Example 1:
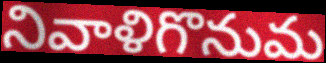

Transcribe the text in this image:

నివాళిగొనుమ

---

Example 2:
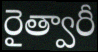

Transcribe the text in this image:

రైత్వారీ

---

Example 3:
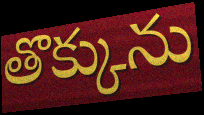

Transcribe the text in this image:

తొక్కును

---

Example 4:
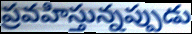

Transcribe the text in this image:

ప్రవహిస్తున్నప్పుడు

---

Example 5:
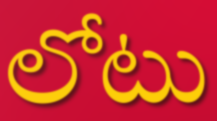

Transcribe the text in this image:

లోటు